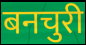
बनचुरी